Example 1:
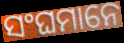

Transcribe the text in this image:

ସଂଘମାନେ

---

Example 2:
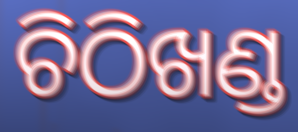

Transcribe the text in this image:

ଚିଠିଖଣ୍ଡ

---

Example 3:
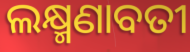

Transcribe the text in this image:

ଲକ୍ଷ୍ମଣାବତୀ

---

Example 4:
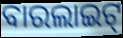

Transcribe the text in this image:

ବାରଲାଇଟ୍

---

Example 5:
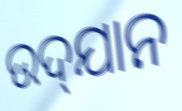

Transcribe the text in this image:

ଉଦ୍‌ଯାନ